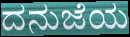
ದನುಜೆಯ